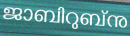
ജാബിറുബ്നു